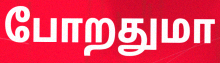
போறதுமா